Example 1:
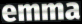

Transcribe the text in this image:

emma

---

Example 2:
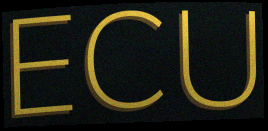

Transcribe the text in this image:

ECU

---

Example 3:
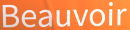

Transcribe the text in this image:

Beauvoir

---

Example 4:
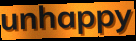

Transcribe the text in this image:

unhappy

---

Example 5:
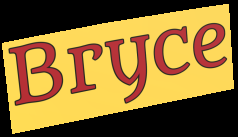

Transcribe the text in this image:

Bryce